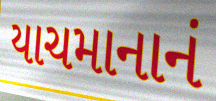
યાચમાનાનં